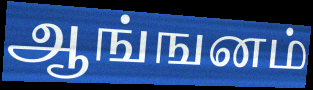
ஆங்ஙனம்